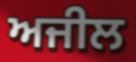
ਅਜੀਲ